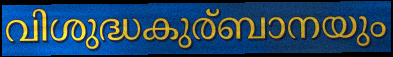
വിശുദ്ധകുര്ബാനയും